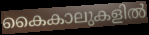
കൈകാലുകളിൽ